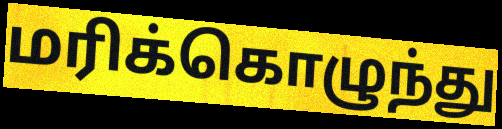
மரிக்கொழுந்து